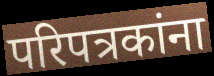
परिपत्रकांना